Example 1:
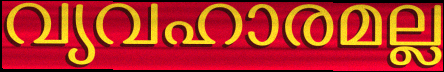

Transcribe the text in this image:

വ്യവഹാരമല്ല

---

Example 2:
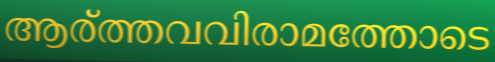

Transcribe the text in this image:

ആര്ത്തവവിരാമത്തോടെ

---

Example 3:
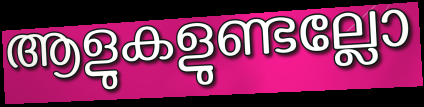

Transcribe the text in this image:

ആളുകളുണ്ടല്ലോ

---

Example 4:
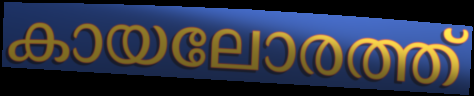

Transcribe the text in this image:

കായലോരത്ത്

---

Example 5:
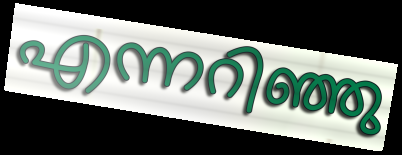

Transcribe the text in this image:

എന്നറിഞ്ഞു